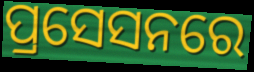
ପ୍ରସେସନରେ